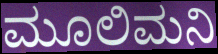
ಮೂಲಿಮನಿ